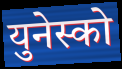
युनेस्को